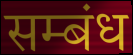
सम्बंध